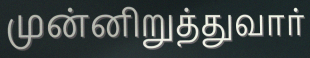
முன்னிறுத்துவார்